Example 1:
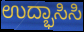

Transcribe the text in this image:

ಉದ್ಭಾಸಿಸಿ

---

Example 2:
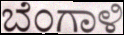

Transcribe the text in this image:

ಬೆಂಗಾಳಿ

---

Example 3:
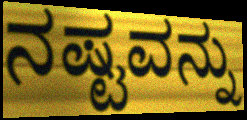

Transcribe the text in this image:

ನಷ್ಟವನ್ನು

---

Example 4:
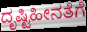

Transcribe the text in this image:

ದೃಷ್ಟಿಹೀನತೆಗೆ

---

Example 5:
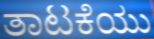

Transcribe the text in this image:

ತಾಟಕೆಯು